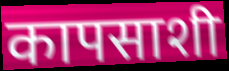
कापसाशी